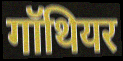
गॉथियर